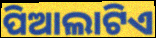
ପିଆଲାଟିଏ